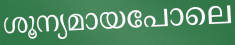
ശൂന്യമായപോലെ